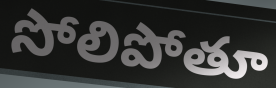
సోలిపోతూ